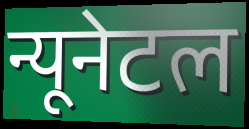
न्यूनेटल